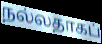
நல்லதாகப்